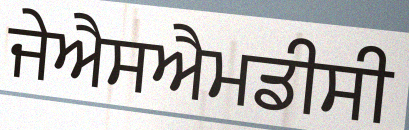
ਜੇਐਸਐਮਡੀਸੀ